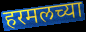
हरमलच्या